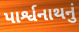
પાર્શ્વનાથનું